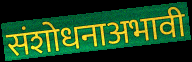
संशोधनाअभावी